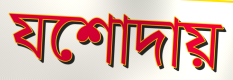
যশোদায়